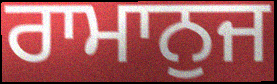
ਰਾਮਾਨੁਜ